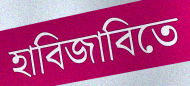
হাবিজাবিতে